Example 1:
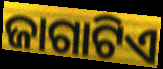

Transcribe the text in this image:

ଜାଗାଟିଏ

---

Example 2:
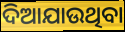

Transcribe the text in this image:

ଦିଆଯାଉଥିବା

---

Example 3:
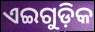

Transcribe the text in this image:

ଏଇଗୁଡ଼ିକ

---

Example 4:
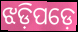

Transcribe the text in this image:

ଝଡ଼ିପଡ଼େ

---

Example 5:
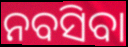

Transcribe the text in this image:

ନବସିବା